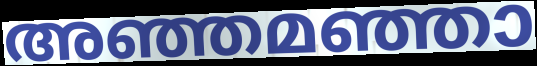
അഞ്ഞമഞ്ഞാ